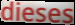
dieses